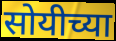
सोयीच्या